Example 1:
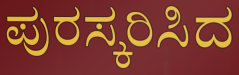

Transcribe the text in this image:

ಪುರಸ್ಕರಿಸಿದ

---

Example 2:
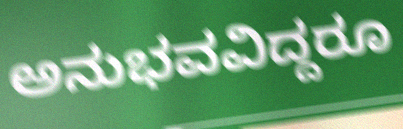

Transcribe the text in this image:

ಅನುಭವವಿದ್ದರೂ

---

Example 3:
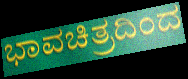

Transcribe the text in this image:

ಭಾವಚಿತ್ರದಿಂದ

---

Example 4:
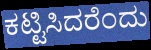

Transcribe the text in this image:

ಕಟ್ಟಿಸಿದರೆಂದು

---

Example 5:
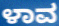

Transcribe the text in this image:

ಳಾವ